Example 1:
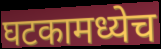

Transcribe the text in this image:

घटकामध्येच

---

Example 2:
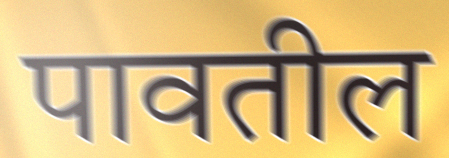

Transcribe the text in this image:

पावतील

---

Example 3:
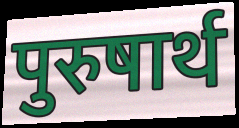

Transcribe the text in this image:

पुरुषार्थ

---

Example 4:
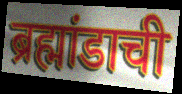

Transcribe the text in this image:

ब्रह्मांडाची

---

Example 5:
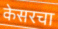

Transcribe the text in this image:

केसरचा